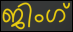
ജിംഗ്